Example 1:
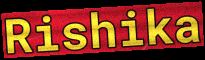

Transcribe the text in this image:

Rishika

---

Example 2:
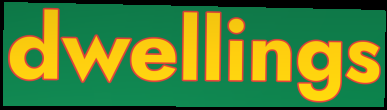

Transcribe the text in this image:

dwellings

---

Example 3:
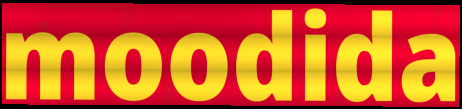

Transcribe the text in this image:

moodida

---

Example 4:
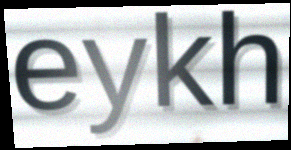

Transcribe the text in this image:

eykh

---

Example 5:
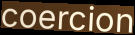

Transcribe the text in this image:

coercion